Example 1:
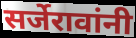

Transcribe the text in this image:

सर्जेरावांनी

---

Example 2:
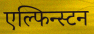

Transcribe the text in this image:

एल्फिन्स्टन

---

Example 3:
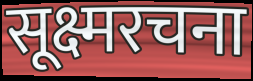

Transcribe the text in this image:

सूक्ष्मरचना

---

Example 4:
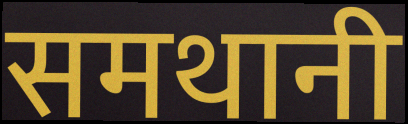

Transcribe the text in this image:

समथानी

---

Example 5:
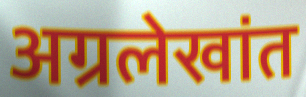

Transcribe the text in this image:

अग्रलेखांत